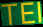
TEI